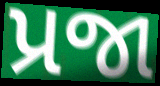
પ્રજા